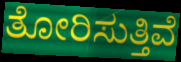
ತೋರಿಸುತ್ತಿವೆ